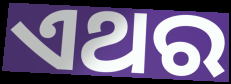
ଏଥର